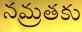
నమ్రతకు